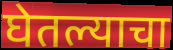
घेतल्याचा